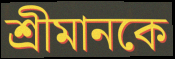
শ্রীমানকে